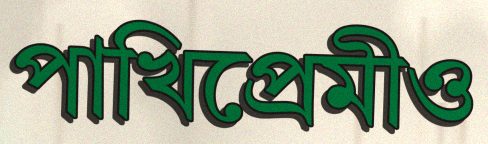
পাখিপ্রেমীও